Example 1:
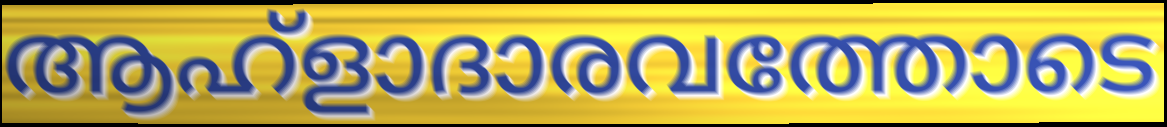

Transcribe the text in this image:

ആഹ്ളാദാരവത്തോടെ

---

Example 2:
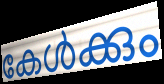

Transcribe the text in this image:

കേൾക്കും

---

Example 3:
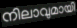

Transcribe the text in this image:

നിലാവുമായി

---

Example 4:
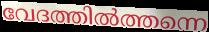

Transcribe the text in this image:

വേദത്തിൽത്തന്നെ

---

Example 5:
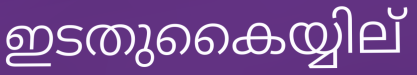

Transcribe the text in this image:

ഇടതുകൈയ്യില്